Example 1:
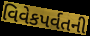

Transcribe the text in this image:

વિવેકપર્વતની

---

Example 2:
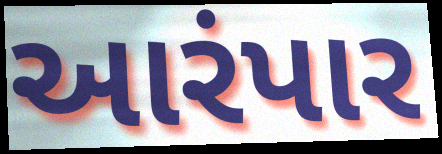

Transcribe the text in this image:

આરંપાર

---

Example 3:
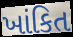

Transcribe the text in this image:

ખાંકિત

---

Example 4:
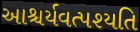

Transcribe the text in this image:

આશ્ચર્યવત્પશ્યતિ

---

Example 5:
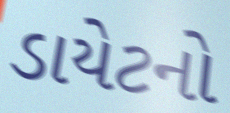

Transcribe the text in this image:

ડાયેટનો